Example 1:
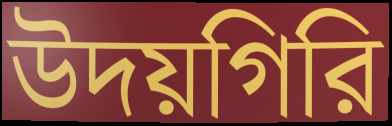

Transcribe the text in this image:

উদয়গিরি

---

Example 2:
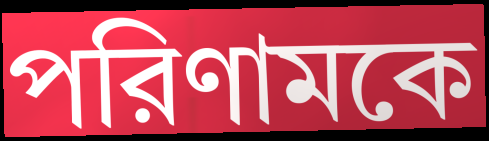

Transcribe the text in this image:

পরিণামকে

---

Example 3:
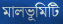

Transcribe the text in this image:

মালভূমিটি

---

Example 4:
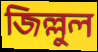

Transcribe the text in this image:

জিল্লুল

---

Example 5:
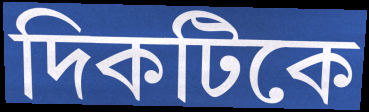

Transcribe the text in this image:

দিকটিকে